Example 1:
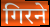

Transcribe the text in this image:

गिरने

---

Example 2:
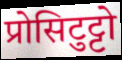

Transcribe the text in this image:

प्रोसिटुट्टो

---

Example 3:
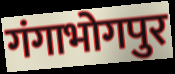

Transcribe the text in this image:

गंगाभोगपुर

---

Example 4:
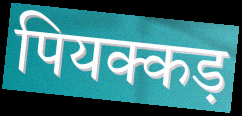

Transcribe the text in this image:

पियक्कड़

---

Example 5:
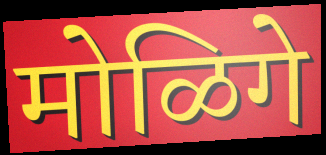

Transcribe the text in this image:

मोळिगे